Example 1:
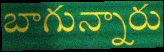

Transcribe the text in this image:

బాగున్నారు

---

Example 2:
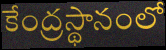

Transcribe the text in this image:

కేంద్రస్థానంలో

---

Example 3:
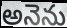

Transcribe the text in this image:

అనెను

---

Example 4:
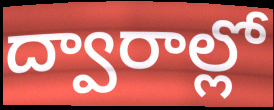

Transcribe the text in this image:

ద్వారాల్లో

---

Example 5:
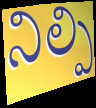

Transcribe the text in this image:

నిల్పి